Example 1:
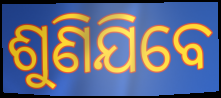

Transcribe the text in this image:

ଶୁଣିଯିବେ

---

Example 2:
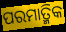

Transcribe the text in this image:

ପରମାତ୍ମିକ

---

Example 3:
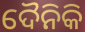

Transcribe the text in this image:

ଦୈନିକି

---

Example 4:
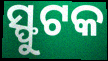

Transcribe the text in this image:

ସ୍ଫୁଟକ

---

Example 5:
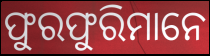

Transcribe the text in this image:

ଫୁରଫୁରିମାନେ